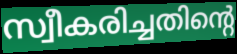
സ്വീകരിച്ചതിന്റെ